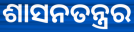
ଶାସନତନ୍ତ୍ରର